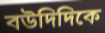
বউদিদিকে